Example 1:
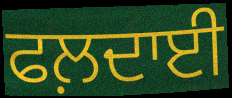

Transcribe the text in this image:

ਫਲ਼ਦਾਈ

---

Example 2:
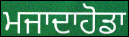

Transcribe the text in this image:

ਮਜਾਦਾਹੋਡਾ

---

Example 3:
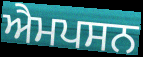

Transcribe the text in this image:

ਐਮਪਸਨ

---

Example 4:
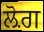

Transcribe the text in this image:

ਲ਼ੋਗ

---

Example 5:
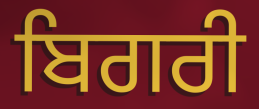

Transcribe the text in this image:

ਬਿਗਰੀ